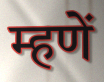
म्हणें